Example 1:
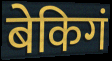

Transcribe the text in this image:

बेकिगं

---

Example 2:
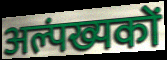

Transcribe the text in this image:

अल्पंख्यकों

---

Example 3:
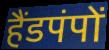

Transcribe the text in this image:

हैंडपंपों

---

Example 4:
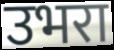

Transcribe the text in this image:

उभरा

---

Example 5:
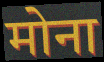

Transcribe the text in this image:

मोना